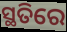
ସ୍ଥତିରେ